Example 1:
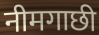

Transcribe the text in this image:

नीमगाछी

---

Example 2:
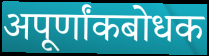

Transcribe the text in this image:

अपूर्णांकबोधक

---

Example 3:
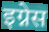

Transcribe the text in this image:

इग्नेस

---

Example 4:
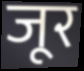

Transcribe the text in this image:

जूर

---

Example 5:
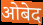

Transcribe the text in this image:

ओबेद